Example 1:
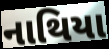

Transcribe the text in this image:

નાથિયા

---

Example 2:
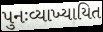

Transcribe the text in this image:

પુનઃવ્યાખ્યાયિત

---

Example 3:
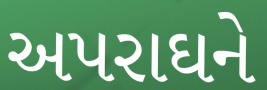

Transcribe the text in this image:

અપરાઘને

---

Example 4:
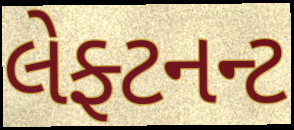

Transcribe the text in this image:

લેફ્ટનન્ટ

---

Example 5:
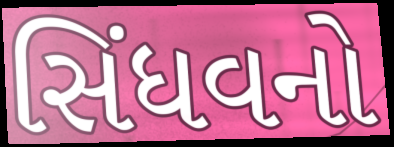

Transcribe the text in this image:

સિંધવનો